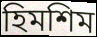
হিমশিম